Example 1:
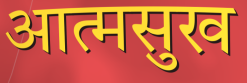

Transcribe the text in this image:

आत्मसुख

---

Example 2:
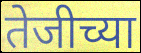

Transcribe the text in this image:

तेजीच्या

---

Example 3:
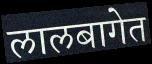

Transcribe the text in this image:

लालबागेत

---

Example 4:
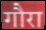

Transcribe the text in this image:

गौरा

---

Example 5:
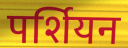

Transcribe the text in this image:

पर्शियन